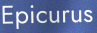
Epicurus